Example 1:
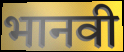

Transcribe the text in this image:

भानवी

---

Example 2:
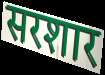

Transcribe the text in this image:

सरशार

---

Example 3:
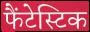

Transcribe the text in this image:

फैंटेस्टिक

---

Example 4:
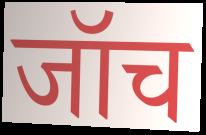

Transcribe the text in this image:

जॉच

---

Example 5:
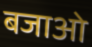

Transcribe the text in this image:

बजाओ